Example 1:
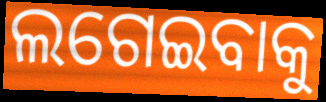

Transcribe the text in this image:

ଲଗେଇବାକୁ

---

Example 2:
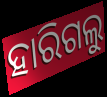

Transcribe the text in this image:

ହାରିଗଲୁ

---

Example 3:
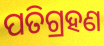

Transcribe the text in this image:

ପତିଗ୍ରହଣ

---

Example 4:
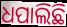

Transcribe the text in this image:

ଧପାଲିଛି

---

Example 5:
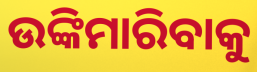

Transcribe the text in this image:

ଉଙ୍କିମାରିବାକୁ